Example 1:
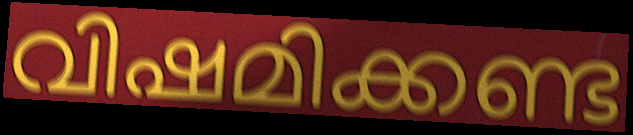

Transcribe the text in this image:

വിഷമിക്കണ്ട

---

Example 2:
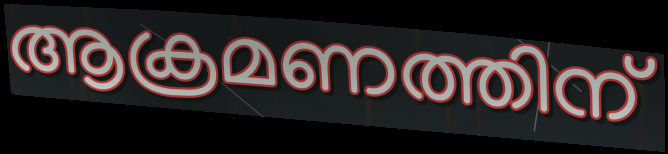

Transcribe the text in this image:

ആക്രമണത്തിന്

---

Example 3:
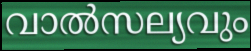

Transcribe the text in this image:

വാൽസല്യവും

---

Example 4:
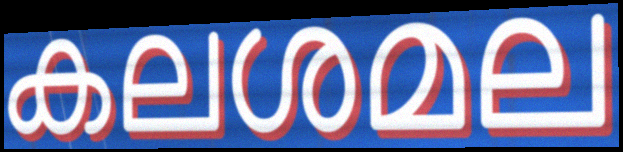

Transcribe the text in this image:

കലശമല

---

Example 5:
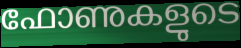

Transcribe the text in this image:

ഫോണുകളുടെ